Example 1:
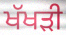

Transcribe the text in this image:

ਖੱਖੜੀ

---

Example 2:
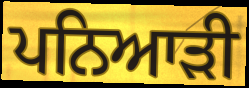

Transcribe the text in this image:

ਪਨਿਆੜੀ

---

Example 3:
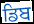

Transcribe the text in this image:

ਡਿਬ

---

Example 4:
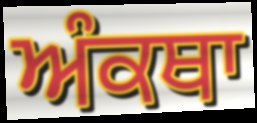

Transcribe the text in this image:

ਅੰਕਥਾ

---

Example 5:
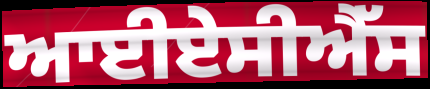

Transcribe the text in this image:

ਆਈਏਸੀਐੱਸ